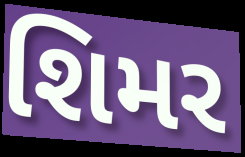
શિમર